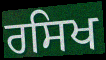
ਰਸਿਖ